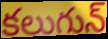
కలుగున్